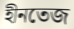
হীনতেজ